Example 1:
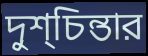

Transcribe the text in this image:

দুশ্‌চিন্তার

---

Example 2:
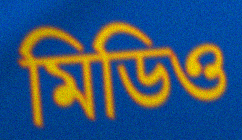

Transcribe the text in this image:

মিডিও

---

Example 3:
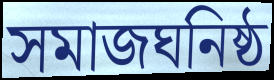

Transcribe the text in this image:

সমাজঘনিষ্ঠ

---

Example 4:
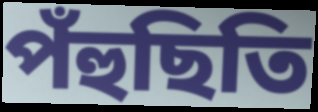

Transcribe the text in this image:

পঁহুছিতি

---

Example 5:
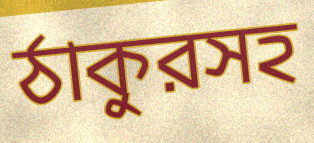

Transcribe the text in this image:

ঠাকুরসহ